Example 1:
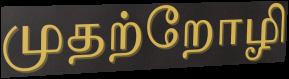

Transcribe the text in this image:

முதற்றோழி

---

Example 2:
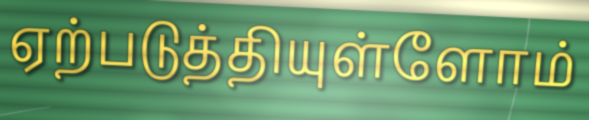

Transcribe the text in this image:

ஏற்படுத்தியுள்ளோம்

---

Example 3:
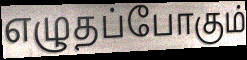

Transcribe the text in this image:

எழுதப்போகும்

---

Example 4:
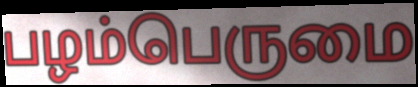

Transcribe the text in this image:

பழம்பெருமை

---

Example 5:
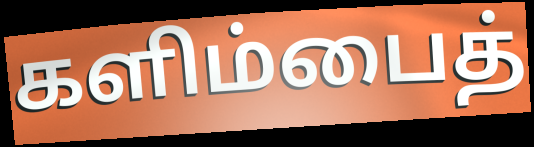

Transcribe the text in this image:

களிம்பைத்